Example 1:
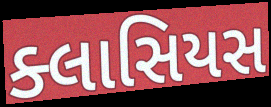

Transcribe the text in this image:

ક્લાસિયસ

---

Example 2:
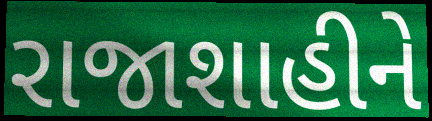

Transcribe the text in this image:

રાજાશાહીને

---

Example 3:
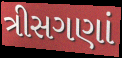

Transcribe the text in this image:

ત્રીસગણાં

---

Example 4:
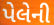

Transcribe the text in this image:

પેલેની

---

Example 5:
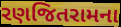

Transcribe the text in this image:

રણજિતરામના